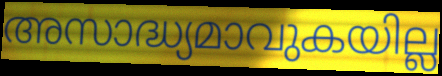
അസാദ്ധ്യമാവുകയില്ല